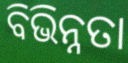
ବିଭିନ୍ନତା